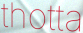
thotta